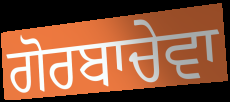
ਗੋਰਬਾਚੇਵਾ